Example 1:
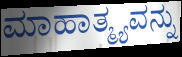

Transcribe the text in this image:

ಮಾಹಾತ್ಮ್ಯವನ್ನು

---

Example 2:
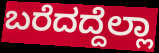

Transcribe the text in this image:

ಬರೆದದ್ದೆಲ್ಲಾ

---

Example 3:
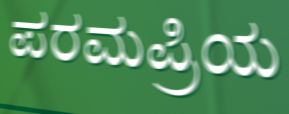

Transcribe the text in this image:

ಪರಮಪ್ರಿಯ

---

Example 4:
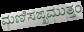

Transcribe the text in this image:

ಮಣಿಸಙ್ಖಮುತ್ತಂ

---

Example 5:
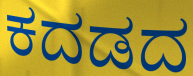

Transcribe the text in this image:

ಕದಡದ